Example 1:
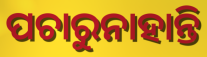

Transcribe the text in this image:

ପଚାରୁନାହାନ୍ତି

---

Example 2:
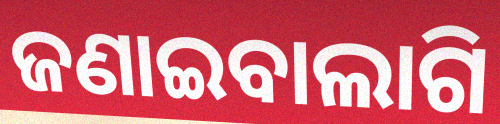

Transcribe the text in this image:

ଜଣାଇବାଲାଗି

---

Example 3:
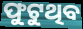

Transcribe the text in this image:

ଫୁଟୁଥିବ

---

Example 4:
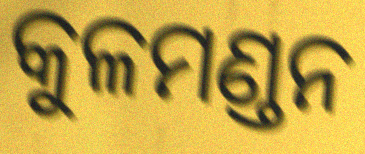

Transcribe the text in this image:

କୁଳମଣ୍ଡନ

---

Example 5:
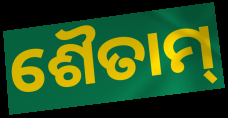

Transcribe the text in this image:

ଶୈତାମ୍